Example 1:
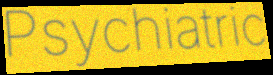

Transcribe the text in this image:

Psychiatric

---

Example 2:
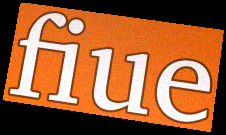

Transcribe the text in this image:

fiue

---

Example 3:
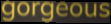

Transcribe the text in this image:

gorgeous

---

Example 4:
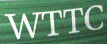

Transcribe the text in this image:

WTTC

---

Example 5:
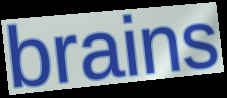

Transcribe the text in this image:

brains